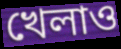
খেলাও